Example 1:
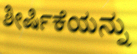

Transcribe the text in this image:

ಶೀರ್ಷಿಕೆಯನ್ನು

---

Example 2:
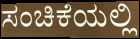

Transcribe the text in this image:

ಸಂಚಿಕೆಯಲ್ಲಿ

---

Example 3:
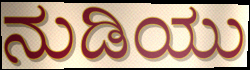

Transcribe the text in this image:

ನುಡಿಯು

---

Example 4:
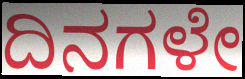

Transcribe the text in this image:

ದಿನಗಳೇ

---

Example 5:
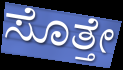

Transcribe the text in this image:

ಸೊತ್ತೇ